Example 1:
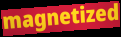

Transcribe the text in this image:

magnetized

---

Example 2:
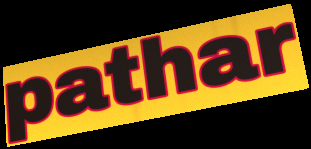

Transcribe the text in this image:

pathar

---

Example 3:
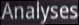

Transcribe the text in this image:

Analyses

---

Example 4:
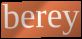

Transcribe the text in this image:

berey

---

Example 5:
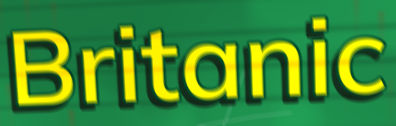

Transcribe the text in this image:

Britanic